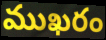
ముఖరం